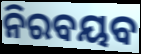
ନିରବୟବ